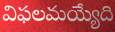
విఫలమయ్యేది